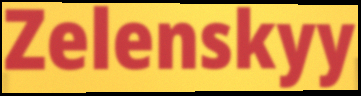
Zelenskyy